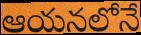
ఆయనలోనే